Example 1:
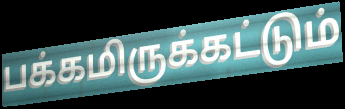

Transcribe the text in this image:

பக்கமிருக்கட்டும்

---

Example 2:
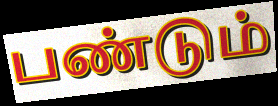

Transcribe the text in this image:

பண்டும்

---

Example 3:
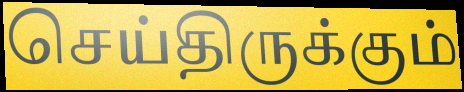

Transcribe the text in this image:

செய்திருக்கும்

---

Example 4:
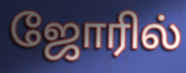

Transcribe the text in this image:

ஜோரில்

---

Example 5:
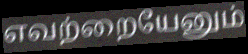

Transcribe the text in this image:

எவற்றையேனும்